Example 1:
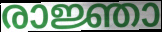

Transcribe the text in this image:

രാജ്ഞാ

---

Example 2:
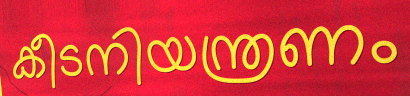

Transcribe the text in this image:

കീടനിയന്ത്രണം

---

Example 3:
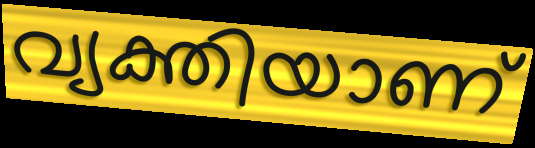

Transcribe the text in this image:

വ്യക്തിയാണ്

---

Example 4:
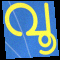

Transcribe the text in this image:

വൂ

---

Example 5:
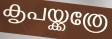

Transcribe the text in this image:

കൃപയ്ക്കത്രേ